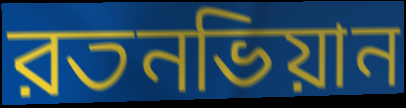
রতনভিয়ান